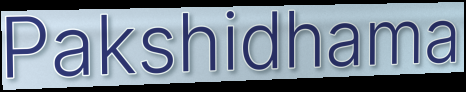
Pakshidhama